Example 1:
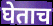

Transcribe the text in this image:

घेताच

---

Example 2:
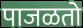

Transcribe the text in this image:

पाजळतो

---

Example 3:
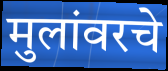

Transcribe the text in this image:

मुलांवरचे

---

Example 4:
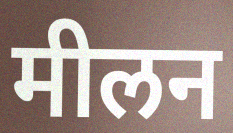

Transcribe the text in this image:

मीलन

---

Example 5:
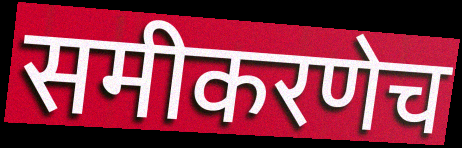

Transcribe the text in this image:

समीकरणेच